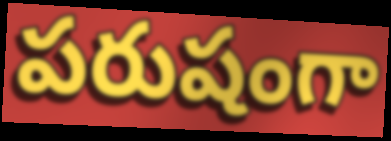
పరుషంగా